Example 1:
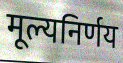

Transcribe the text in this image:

मूल्यनिर्णय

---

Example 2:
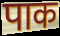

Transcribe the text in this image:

पाक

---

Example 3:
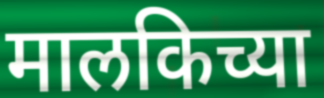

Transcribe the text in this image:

मालकिच्या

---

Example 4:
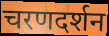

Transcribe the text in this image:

चरणदर्शन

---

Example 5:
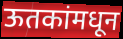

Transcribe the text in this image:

ऊतकांमधून